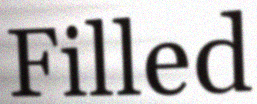
Filled